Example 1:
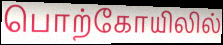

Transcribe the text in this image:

பொற்கோயிலில்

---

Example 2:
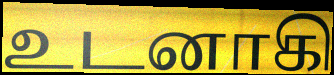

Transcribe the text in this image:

உடனாகி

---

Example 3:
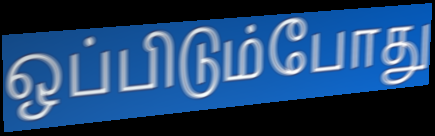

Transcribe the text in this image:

ஒப்பிடும்போது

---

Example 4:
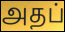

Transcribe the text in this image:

அதப்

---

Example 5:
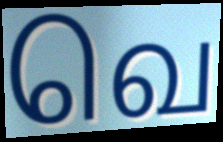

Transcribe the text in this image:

வெ